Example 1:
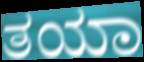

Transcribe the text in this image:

ತಯಾ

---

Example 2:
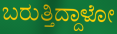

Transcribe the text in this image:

ಬರುತ್ತಿದ್ದಾಳೋ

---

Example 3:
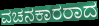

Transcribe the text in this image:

ವಚನಕಾರರಾದ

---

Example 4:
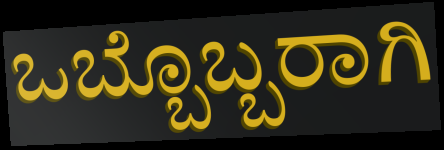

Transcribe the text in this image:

ಒಬ್ಬೊಬ್ಬರಾಗಿ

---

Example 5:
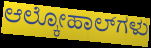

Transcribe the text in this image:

ಆಲ್ಕೋಹಾಲ್‌ಗಳು